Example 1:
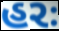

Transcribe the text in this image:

હરઃ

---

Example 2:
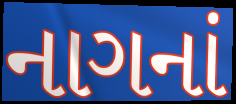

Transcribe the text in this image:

નાગનાં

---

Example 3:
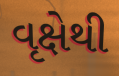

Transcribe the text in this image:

વૃક્ષેથી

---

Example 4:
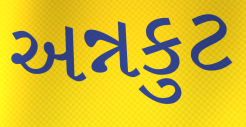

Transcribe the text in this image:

અન્નકુટ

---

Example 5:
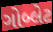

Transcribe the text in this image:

ગોબ્લેટ